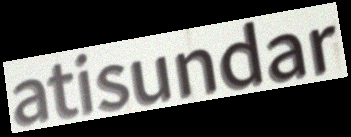
atisundar